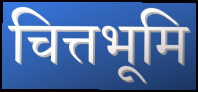
चित्तभूमि